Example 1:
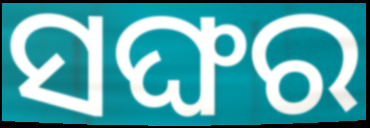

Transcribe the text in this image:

ସଙ୍ଘର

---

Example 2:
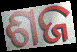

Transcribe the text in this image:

ଶଜ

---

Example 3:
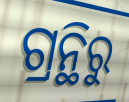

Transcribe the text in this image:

ଗ୍ରନ୍ଥିରୁ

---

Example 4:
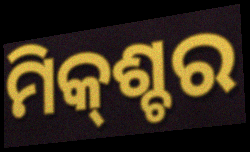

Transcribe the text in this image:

ମିକ୍‌ଶ୍ଚର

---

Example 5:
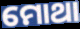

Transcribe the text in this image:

ମୋଥା